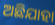
ଅଛିଯାହା